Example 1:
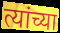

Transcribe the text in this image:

त्यांच्या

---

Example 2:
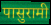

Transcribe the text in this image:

पासुरामी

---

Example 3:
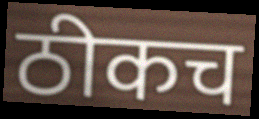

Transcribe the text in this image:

ठीकच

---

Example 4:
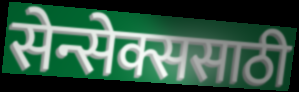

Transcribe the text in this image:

सेन्सेक्ससाठी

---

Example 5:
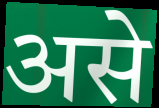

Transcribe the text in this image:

असे